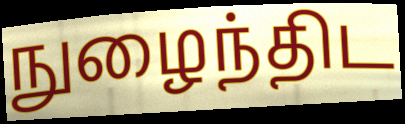
நுழைந்திட